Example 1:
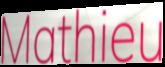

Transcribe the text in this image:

Mathieu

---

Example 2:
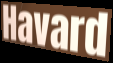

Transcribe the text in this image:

Havard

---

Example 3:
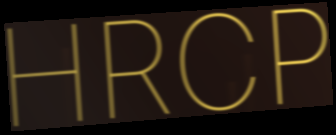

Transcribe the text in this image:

HRCP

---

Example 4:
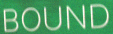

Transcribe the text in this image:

BOUND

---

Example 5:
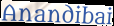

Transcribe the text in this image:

Anandibai